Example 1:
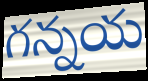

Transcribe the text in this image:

గన్నయ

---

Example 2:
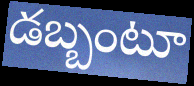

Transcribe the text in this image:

డబ్బంటూ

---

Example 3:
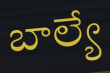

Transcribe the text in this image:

బాల్యే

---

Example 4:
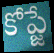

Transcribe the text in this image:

కోప్జే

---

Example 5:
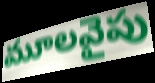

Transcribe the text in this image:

మూలవైపు